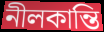
নীলকান্তি